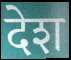
देश